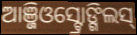
ଆଞ୍ଜିଓସ୍ଟ୍ରୋଙ୍ଗିଲସ୍